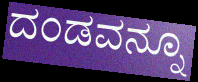
ದಂಡವನ್ನೂ